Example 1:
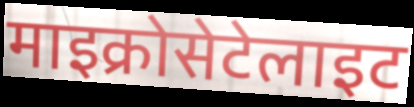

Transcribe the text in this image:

माइक्रोसेटेलाइट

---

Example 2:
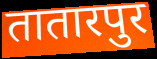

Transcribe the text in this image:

तातारपुर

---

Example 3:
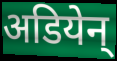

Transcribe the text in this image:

अडियेन्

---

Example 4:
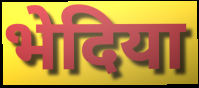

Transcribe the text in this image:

भेदिया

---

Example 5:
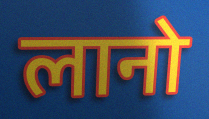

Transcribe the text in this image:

लानो